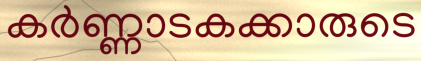
കർണ്ണാടകക്കാരുടെ